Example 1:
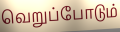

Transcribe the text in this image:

வெறுப்போடும்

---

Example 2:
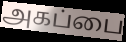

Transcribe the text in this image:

அகப்பை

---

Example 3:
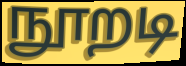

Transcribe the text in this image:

நூறடி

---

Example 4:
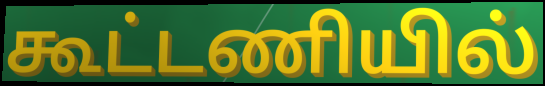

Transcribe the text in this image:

கூட்டணியில்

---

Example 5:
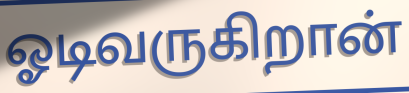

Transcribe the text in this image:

ஓடிவருகிறான்